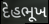
દેહભૂખ